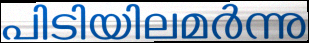
പിടിയിലമർന്നു